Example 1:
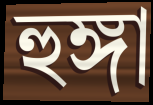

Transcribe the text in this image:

হুঙ্গা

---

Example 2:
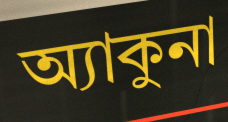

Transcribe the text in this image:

অ্যাকুনা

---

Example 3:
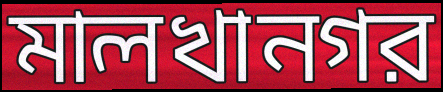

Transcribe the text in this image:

মালখানগর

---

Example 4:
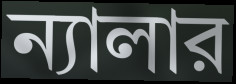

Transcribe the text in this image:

ন্যালার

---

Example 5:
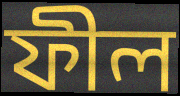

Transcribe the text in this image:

ফীল